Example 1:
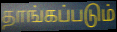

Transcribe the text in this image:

தாங்கப்படும்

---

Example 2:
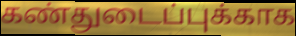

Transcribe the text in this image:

கண்துடைப்புக்காக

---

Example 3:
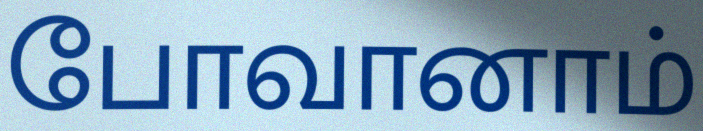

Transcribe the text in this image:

போவானாம்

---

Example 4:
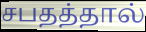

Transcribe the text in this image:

சபதத்தால்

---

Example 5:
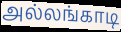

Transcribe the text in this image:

அல்லங்காடி